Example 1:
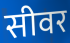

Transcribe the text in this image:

सीवर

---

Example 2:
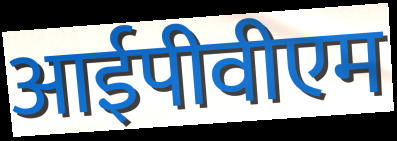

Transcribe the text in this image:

आईपीवीएम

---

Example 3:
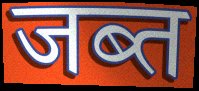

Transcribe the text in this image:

जब्त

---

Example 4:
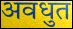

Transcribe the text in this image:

अवधुत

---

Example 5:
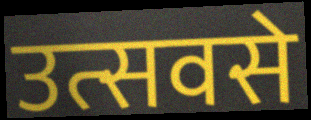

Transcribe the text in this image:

उत्सवसे